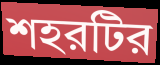
শহরটির